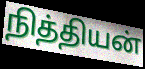
நித்தியன்